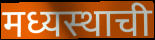
मध्यस्थाची